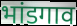
भांडगाव